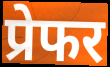
प्रेफर